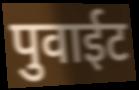
पुवाईट